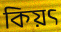
কিয়ৎ